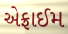
એફ્રાઈમ